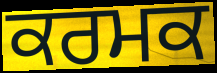
ਕਰਮਕ